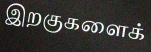
இறகுகளைக்